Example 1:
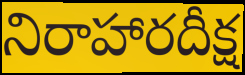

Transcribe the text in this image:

నిరాహారదీక్ష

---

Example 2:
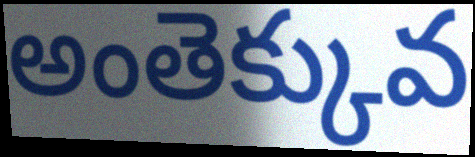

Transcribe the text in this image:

అంతెక్కువ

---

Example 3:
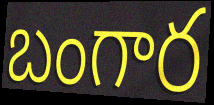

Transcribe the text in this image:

బంగార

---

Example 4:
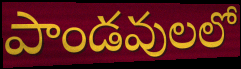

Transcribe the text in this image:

పాండవులలో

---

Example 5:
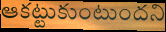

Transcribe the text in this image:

ఆకట్టుకుంటుందని